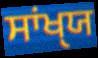
ਸਾਂਖੑਯ